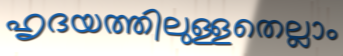
ഹൃദയത്തിലുള്ളതെല്ലാം